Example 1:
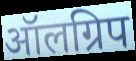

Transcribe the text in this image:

ऑलग्रिप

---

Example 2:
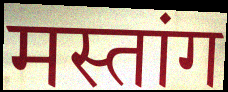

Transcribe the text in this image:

मस्तांग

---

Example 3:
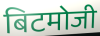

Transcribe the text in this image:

बिटमोजी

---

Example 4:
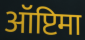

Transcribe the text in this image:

ऑप्टिमा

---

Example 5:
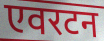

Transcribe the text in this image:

एवरटन